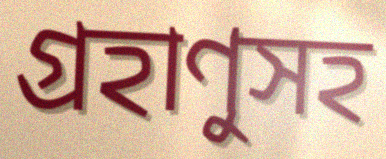
গ্রহাণুসহ